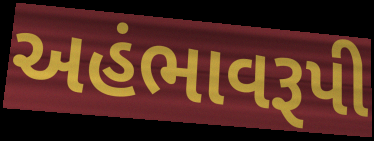
અહંભાવરૂપી